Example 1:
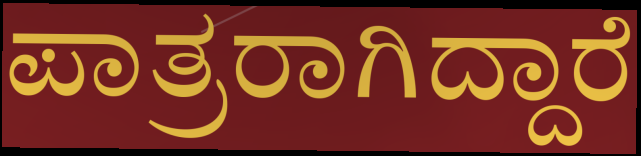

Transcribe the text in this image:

ಪಾತ್ರರಾಗಿದ್ದಾರೆ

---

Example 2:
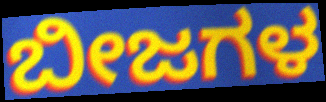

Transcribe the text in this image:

ಬೀಜಗಳ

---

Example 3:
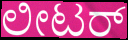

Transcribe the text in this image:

ಲೀಟರ್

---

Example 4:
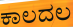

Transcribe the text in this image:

ಕಾಲದಲ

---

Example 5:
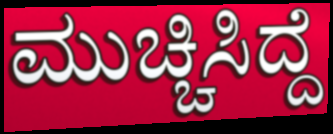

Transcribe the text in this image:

ಮುಚ್ಚಿಸಿದ್ದೆ